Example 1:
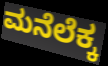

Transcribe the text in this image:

ಮನೆಲೆಕ್ಕ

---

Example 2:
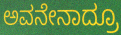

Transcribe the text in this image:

ಅವನೇನಾದ್ರೂ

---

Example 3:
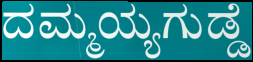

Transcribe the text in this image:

ದಮ್ಮಯ್ಯಗುಡ್ಡೆ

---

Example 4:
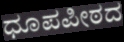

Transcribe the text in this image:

ಧೂಪಪೀಠದ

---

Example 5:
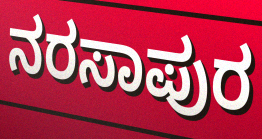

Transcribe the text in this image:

ನರಸಾಪುರ